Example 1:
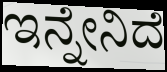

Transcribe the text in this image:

ಇನ್ನೇನಿದೆ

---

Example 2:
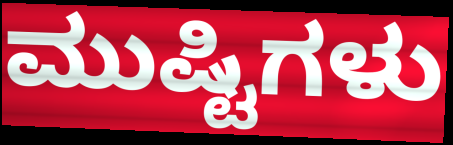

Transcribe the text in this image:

ಮುಷ್ಟಿಗಳು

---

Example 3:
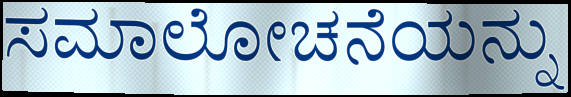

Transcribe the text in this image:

ಸಮಾಲೋಚನೆಯನ್ನು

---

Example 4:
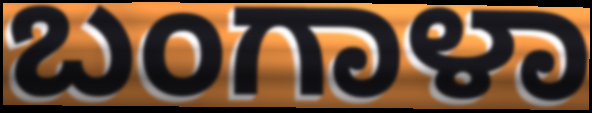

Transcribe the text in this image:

ಬಂಗಾಳಾ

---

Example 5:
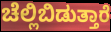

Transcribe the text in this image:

ಚೆಲ್ಲಿಬಿಡುತ್ತಾರೆ